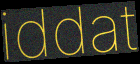
iddat